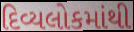
દિવ્યલોકમાંથી